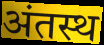
अंतस्थ